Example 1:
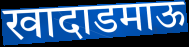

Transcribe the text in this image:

खादाडमाऊ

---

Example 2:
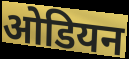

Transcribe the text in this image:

ओडियन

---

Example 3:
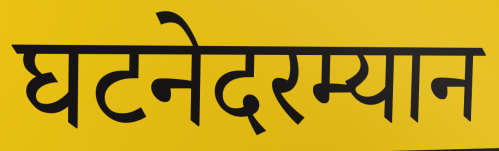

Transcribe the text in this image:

घटनेदरम्यान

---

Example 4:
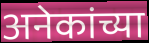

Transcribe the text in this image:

अनेकांच्या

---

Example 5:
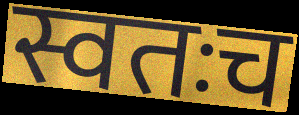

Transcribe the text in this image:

स्वतःच